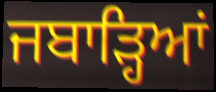
ਜਬਾੜ੍ਹਿਆਂ